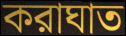
করাঘাত